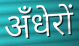
अँधेरों